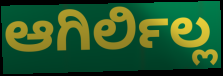
ಆಗಿರ್ಲಿಲ್ಲ